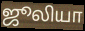
ஜூலியா